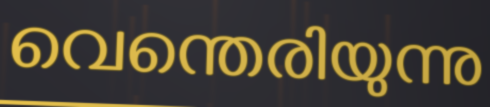
വെന്തെരിയുന്നു